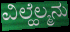
ವಿಲ್ಹೆಲ್ಮನು